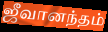
ஜீவானந்தம்